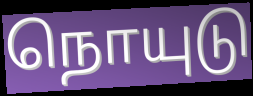
நொயுடு